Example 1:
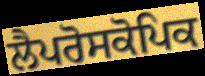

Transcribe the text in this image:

ਲੈਪਰੋਸਕੋਪਿਕ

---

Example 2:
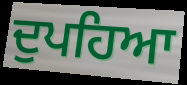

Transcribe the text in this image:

ਦੁਪਹਿਆ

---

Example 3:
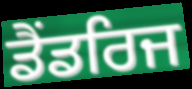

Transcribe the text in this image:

ਡੈਂਡਰਿਜ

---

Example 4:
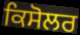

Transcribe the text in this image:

ਕਿਸੋਲਰ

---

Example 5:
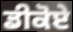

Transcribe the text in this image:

ਡੀਕੋਏ